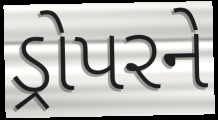
ડ્રોપરને